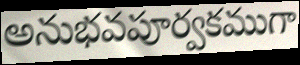
అనుభవపూర్వకముగా